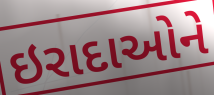
ઇરાદાઓને